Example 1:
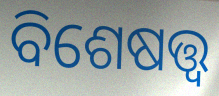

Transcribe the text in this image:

ବିଶେଷତ୍ତ୍ୱ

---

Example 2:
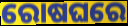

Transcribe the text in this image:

ରୋଷଘରେ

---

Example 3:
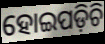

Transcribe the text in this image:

ହୋଇପଡ଼ିଚି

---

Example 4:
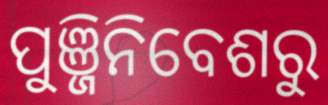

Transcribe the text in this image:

ପୁଞ୍ଜିନିବେଶରୁ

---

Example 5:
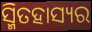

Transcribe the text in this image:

ସ୍ମିତହାସ୍ୟର